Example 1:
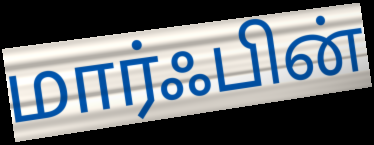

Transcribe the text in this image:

மார்ஃபின்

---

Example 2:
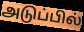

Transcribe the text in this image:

அடுப்பில்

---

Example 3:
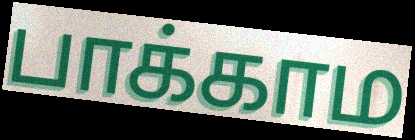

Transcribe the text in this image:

பாக்காம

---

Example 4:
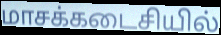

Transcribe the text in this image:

மாசக்கடைசியில்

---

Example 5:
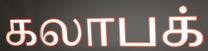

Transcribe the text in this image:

கலாபக்